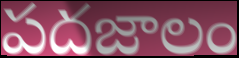
పదజాలం